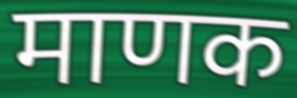
माणक